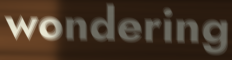
wondering